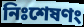
নিঃশেষণং